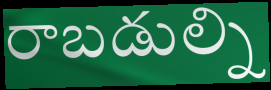
రాబడుల్ని